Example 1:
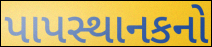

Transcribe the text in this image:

પાપસ્થાનકનો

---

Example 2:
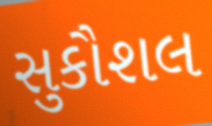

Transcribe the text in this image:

સુકૌશલ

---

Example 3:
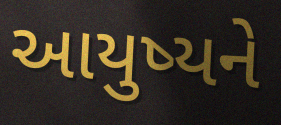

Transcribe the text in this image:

આયુષ્યને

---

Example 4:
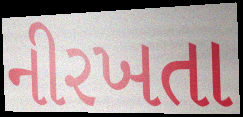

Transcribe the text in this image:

નીરખતા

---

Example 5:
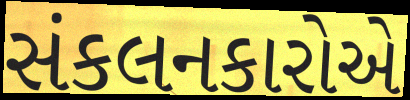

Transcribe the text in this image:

સંકલનકારોએ